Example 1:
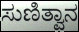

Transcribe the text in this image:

ಸುಣಿತ್ವಾನ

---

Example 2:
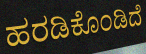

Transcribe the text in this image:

ಹರಡಿಕೊಂಡಿದೆ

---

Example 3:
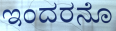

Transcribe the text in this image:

ಇಂದರನೊ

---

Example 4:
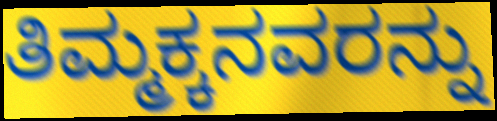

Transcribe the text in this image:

ತಿಮ್ಮಕ್ಕನವರನ್ನು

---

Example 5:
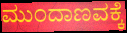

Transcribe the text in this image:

ಮುಂದಾಣವಕ್ಕೆ